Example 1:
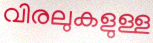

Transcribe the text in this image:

വിരലുകളുള്ള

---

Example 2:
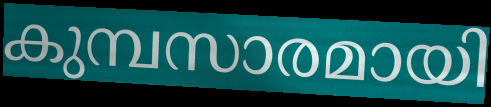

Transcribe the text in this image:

കുമ്പസാരമായി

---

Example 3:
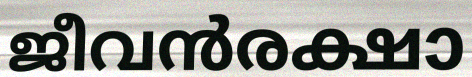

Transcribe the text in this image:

ജീവൻരക്ഷാ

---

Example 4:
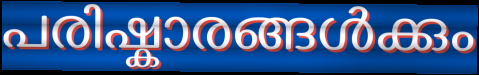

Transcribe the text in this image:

പരിഷ്കാരങ്ങൾക്കും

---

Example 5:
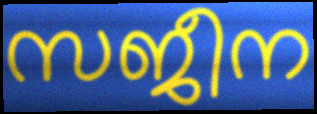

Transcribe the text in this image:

സജീന